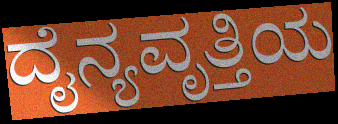
ದೈನ್ಯವೃತ್ತಿಯ